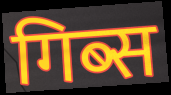
गिब्स